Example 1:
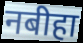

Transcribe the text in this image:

नबीहा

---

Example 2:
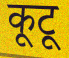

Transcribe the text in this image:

कूटू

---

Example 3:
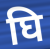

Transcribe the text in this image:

घि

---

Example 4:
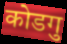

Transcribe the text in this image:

कोडगु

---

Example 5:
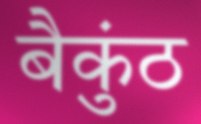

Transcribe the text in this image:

बैकुंठ